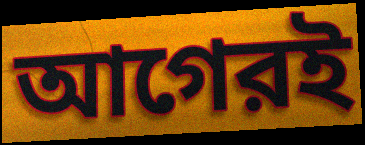
আগেরই